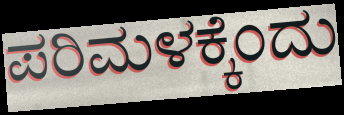
ಪರಿಮಳಕ್ಕೆಂದು